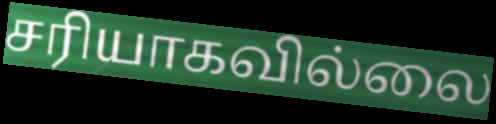
சரியாகவில்லை